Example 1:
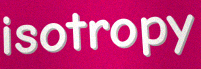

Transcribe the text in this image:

isotropy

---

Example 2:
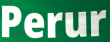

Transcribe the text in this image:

Perur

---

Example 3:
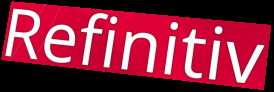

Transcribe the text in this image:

Refinitiv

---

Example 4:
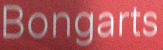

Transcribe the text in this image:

Bongarts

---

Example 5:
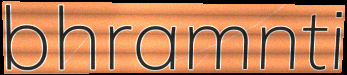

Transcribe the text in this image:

bhramnti